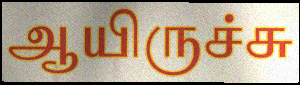
ஆயிருச்சு